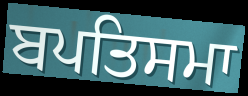
ਬਪਤਿਸਮਾ